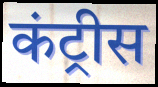
कंट्रीस